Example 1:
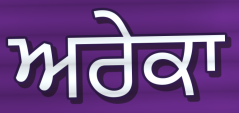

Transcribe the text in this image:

ਅਰੇਕਾ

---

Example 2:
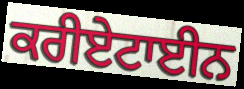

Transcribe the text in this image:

ਕਰੀਏਟਾਈਨ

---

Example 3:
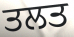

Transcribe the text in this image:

ਤਲਤ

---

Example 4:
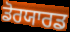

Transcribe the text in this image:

ਡੋਰਯਾਰਡ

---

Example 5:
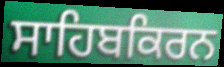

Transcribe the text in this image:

ਸਾਹਿਬਕਿਰਨ